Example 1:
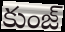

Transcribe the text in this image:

కుంజ్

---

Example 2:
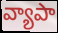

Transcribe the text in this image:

వ్యాపా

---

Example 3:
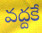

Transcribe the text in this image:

వద్దకే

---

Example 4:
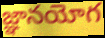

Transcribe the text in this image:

జ్ఞానయోగ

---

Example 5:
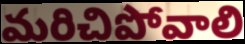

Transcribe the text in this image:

మరిచిపోవాలి